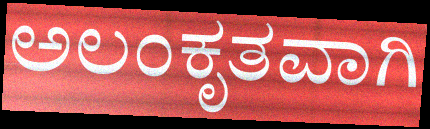
ಅಲಂಕೃತವಾಗಿ